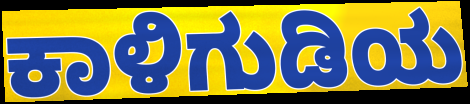
ಕಾಳಿಗುಡಿಯ